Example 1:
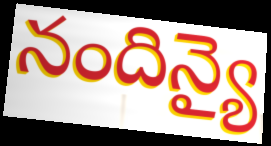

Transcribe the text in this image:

నందిన్యై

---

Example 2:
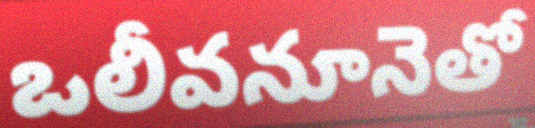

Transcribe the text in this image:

ఒలీవనూనెతో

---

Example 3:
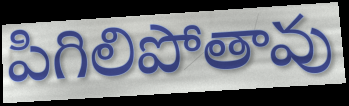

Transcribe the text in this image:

పిగిలిపోతావు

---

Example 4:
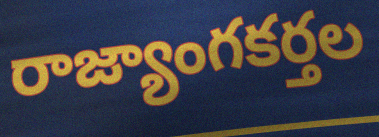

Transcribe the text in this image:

రాజ్యాంగకర్తల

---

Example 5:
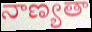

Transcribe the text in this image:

నాణ్యతా